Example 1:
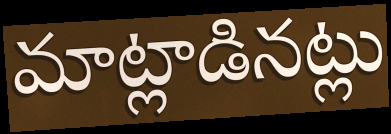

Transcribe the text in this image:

మాట్లాడినట్లు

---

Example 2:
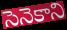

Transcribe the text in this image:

సెనెకాని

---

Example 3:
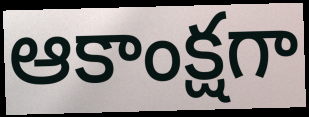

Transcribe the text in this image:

ఆకాంక్షగా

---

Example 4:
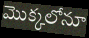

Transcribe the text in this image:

మొక్కలోనూ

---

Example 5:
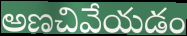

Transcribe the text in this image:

అణచివేయడం